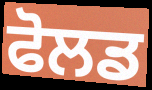
ਫੋਲਡ